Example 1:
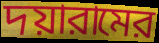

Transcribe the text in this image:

দয়ারামের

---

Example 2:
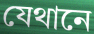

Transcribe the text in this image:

যেথানে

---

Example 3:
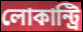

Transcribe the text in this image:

লোকান্ট্রি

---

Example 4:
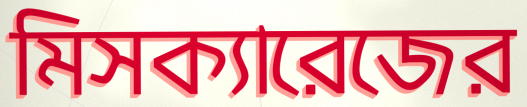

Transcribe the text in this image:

মিসক্যারেজের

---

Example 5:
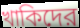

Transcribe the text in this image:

খাকিদের